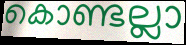
കൊണ്ടല്ലാ